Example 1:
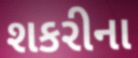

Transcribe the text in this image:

શકરીના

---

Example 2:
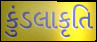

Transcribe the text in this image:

કુંડલાકૃતિ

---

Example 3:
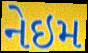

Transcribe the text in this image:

નેઇમ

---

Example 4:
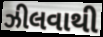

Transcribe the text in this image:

ઝીલવાથી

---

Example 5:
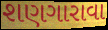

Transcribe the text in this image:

શણગારાવા